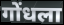
गोंधला